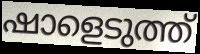
ഷാളെടുത്ത്